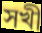
সখী